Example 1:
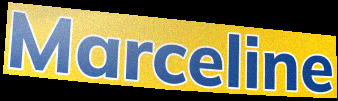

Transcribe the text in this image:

Marceline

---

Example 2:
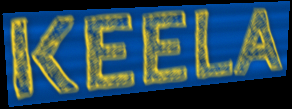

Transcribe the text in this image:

KEELA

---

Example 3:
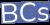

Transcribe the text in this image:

BCs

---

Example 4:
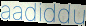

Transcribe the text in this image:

aadiddu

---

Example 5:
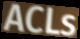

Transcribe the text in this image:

ACLs